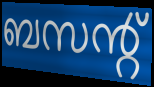
ബസന്റ്